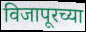
विजापूरच्या